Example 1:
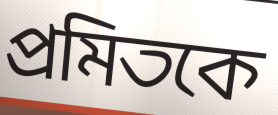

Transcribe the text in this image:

প্রমিতকে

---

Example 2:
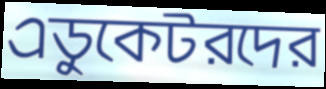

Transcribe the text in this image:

এডুকেটরদের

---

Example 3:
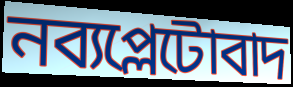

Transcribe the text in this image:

নব্যপ্লেটোবাদ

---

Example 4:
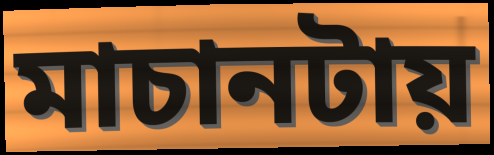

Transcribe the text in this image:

মাচানটায়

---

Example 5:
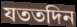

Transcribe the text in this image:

যততদিন